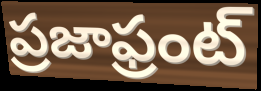
ప్రజాఫ్రంట్